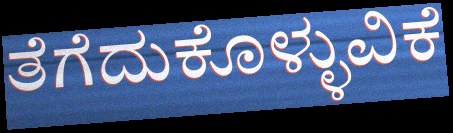
ತೆಗೆದುಕೊಳ್ಳುವಿಕೆ